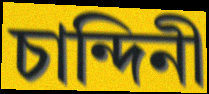
চান্দিনী